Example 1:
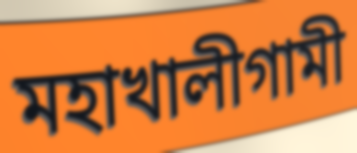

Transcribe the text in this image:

মহাখালীগামী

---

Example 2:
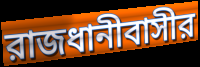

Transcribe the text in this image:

রাজধানীবাসীর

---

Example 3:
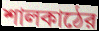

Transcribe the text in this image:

শালকাঠের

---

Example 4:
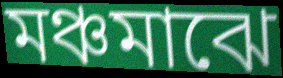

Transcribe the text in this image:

মঞ্চমাঝে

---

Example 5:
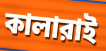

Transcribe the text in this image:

কালারাই